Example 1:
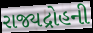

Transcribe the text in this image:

રાજ્યદ્રોહની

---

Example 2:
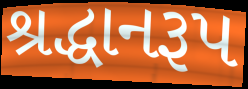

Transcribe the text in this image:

શ્રદ્ધાનરૂપ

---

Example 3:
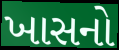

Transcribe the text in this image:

ખાસનો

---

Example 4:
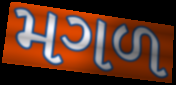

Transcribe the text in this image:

મગળ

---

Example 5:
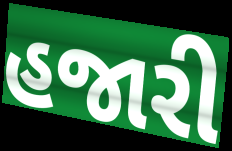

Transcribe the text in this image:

હજારી